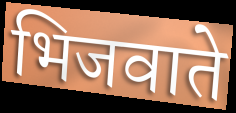
भिजवाते